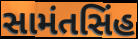
સામંતસિંહ